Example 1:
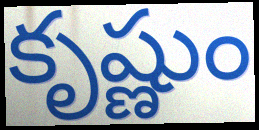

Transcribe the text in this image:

కృష్ణుం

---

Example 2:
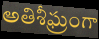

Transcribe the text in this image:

అతిశీఘ్రంగా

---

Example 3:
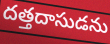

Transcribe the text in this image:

దత్తదాసుడను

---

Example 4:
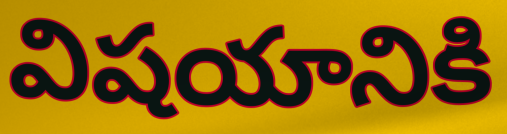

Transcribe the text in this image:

విషయానికి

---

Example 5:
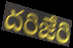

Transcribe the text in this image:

దరిజేరి